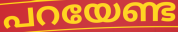
പറയേണ്ട